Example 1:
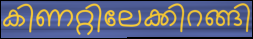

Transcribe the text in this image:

കിണറ്റിലേക്കിറങ്ങി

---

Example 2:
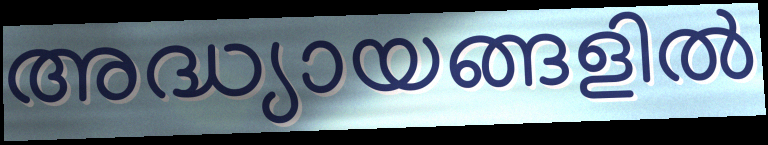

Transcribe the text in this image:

അദ്ധ്യായങ്ങളിൽ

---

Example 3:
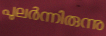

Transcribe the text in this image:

പുലർന്നിരുന്നു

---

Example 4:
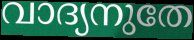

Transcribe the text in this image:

വാദ്യനുതേ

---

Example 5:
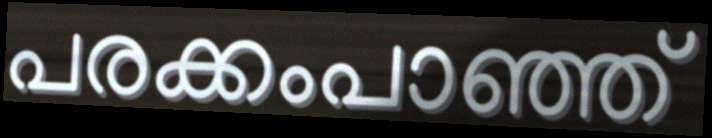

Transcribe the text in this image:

പരക്കംപാഞ്ഞ്